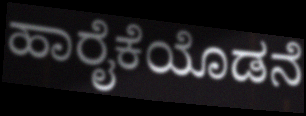
ಹಾರೈಕೆಯೊಡನೆ